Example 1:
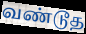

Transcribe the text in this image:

வண்டூத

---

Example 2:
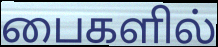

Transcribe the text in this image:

பைகளில்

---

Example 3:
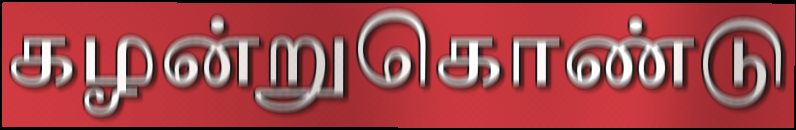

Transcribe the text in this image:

கழன்றுகொண்டு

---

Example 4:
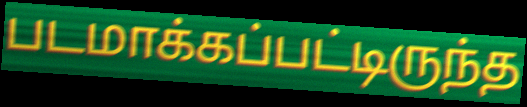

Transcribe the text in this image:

படமாக்கப்பட்டிருந்த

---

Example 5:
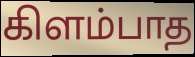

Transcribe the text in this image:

கிளம்பாத